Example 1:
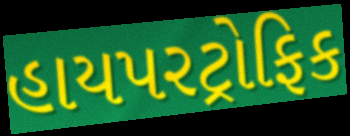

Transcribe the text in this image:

હાયપરટ્રોફિક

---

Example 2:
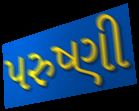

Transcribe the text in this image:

પરુષ્ણી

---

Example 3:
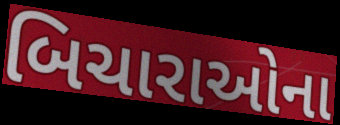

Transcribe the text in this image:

બિચારાઓના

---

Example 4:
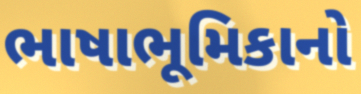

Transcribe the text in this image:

ભાષાભૂમિકાનો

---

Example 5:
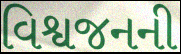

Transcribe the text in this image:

વિશ્વજનની